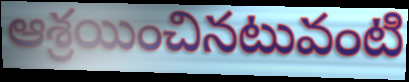
ఆశ్రయించినటువంటి